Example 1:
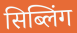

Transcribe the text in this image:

सिब्लिंग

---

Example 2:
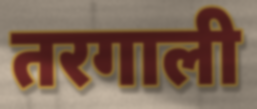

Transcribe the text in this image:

तरगाली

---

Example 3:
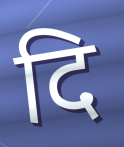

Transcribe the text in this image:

दि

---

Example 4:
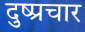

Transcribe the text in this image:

दुष्‍प्रचार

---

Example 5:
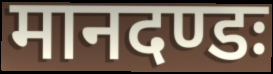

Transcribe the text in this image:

मानदण्डः